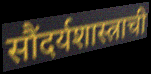
सौंदर्यशास्त्राची